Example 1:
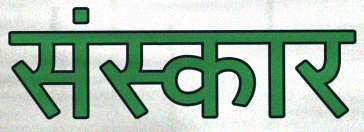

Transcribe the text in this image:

संस्कार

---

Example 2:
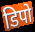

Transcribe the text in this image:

डिपो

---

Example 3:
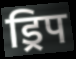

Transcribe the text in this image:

ड्रिप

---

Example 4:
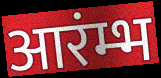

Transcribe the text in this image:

आरंम्भ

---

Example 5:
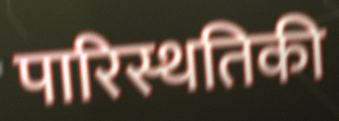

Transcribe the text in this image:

पारिस्थतिकी